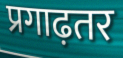
प्रगाढ़तर